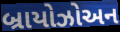
બ્રાયોઝોઅન